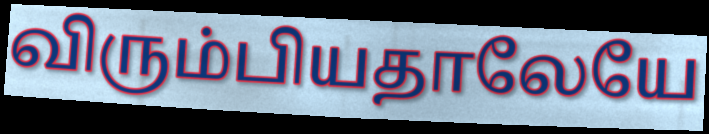
விரும்பியதாலேயே